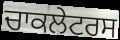
ਚਾਕਲੇਟਰਸ